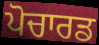
ਪੋਚਾਰਡ